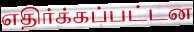
எதிர்க்கப்பட்டன